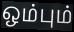
ஒம்பும்